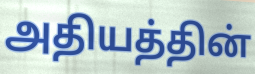
அதியத்தின்